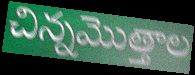
చిన్నమొత్తాల